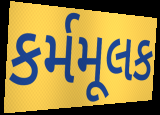
કર્મમૂલક